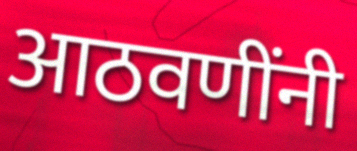
आठवणींनी